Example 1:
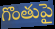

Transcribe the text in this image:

గొంతుపై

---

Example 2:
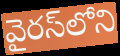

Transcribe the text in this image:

వైరస్‌లోని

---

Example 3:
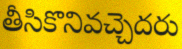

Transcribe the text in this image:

తీసికొనివచ్చెదరు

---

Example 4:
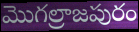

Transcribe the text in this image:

మొగల్రాజపురం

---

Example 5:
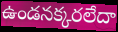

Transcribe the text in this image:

ఉండనక్కరలేదా